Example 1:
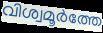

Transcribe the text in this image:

വിശ്വമൂർത്തേ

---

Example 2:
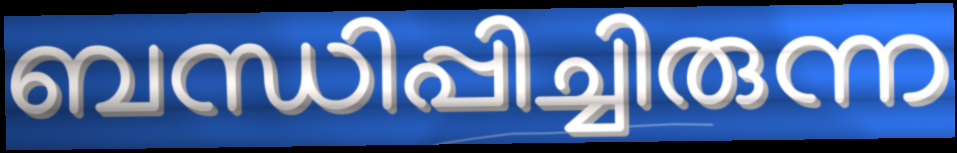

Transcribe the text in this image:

ബന്ധിപ്പിച്ചിരുന്ന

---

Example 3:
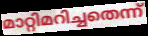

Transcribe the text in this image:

മാറ്റിമറിച്ചതെന്ന്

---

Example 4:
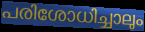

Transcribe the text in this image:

പരിശോധിച്ചാലും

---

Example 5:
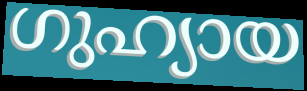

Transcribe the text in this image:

ഗുഹ്യായ